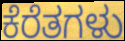
ಕೆರೆತಗಳು